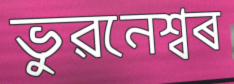
ভুৱনেশ্বৰ